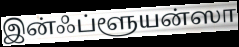
இன்ஃப்ளூயன்ஸா